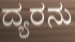
ದ್ಯರನು